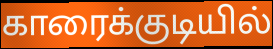
காரைக்குடியில்